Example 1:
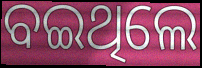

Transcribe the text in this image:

ବଇଥିଲେ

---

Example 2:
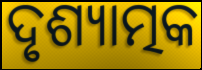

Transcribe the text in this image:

ଦୃଶ୍ୟାତ୍ମକ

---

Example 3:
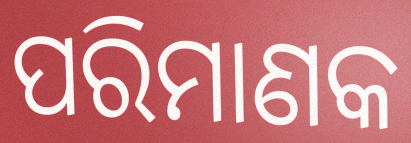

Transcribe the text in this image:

ପରିମାଣକ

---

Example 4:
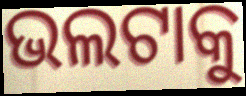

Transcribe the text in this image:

ଭଲଟାକୁ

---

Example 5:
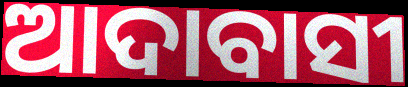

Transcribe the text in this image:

ଆଦାବାସୀ